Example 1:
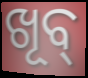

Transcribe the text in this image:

ଖୂବ୍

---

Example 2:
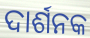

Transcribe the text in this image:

ଦାର୍ଶନକ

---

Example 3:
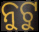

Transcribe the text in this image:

ନୁଟୁ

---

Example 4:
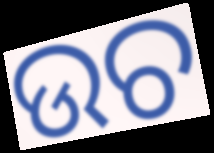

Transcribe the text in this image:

ଉଚ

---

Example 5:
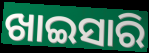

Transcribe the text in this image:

ଖାଇସାରି